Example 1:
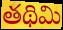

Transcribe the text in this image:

తథిమి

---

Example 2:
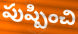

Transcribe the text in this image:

పుష్పించి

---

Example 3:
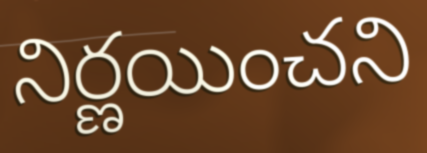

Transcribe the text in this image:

నిర్ణయించని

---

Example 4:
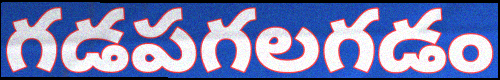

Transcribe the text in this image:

గడపగలగడం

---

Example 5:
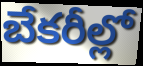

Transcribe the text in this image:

బేకరీల్లో